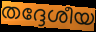
തദ്ദേശീയ